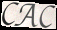
CAC